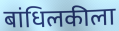
बांधिलकीला